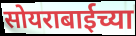
सोयराबाईच्या